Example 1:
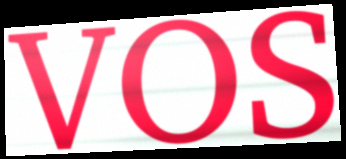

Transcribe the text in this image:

VOS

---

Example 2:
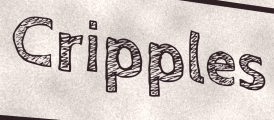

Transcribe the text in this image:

Cripples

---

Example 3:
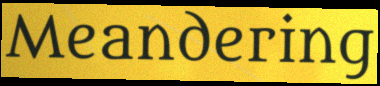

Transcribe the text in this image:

Meandering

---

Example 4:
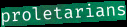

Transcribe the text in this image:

proletarians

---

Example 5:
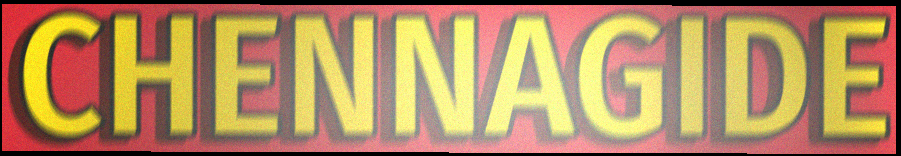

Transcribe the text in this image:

CHENNAGIDE